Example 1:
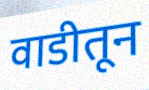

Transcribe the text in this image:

वाडीतून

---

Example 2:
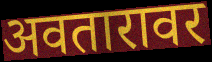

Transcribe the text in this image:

अवतारावर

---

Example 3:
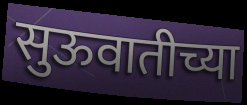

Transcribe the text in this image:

सुऊवातीच्या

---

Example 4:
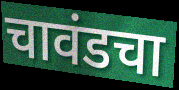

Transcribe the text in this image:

चावंडचा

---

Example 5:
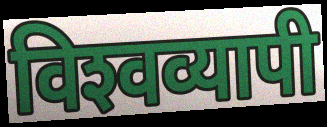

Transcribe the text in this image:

विश्‍वव्यापी